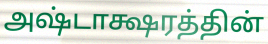
அஷ்டாக்ஷரத்தின்